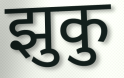
झुकु